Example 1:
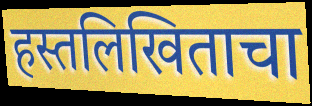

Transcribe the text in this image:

हस्तलिखिताचा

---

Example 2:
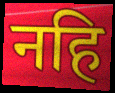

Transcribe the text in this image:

नहि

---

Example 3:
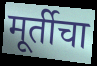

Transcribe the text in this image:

मूर्तीचा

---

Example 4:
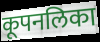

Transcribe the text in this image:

कूपनलिका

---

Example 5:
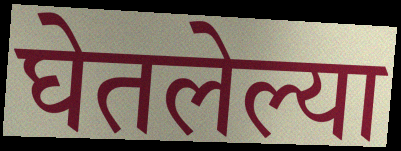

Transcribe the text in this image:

घेतलेल्या